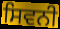
ਸਿਵਨੀ